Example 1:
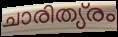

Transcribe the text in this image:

ചാരിത്യ്രം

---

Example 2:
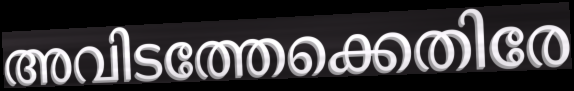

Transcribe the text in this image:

അവിടത്തേക്കെതിരേ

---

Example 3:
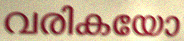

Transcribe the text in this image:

വരികയോ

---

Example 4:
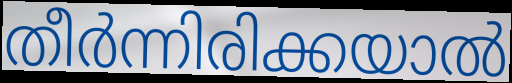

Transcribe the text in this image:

തീർന്നിരിക്കയാൽ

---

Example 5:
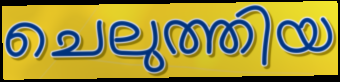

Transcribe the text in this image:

ചെലുത്തിയ